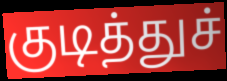
குடித்துச்